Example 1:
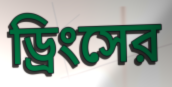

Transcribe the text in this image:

ড্রিংসের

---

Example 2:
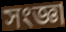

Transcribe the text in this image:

সংজ্ঞা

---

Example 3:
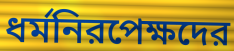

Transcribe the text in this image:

ধর্মনিরপেক্ষদের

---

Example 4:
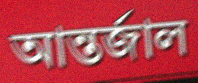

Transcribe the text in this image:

আন্তর্জাল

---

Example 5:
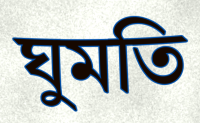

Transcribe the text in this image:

ঘুমতি